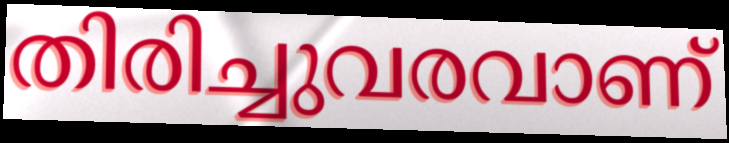
തിരിച്ചുവരവാണ്